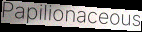
Papilionaceous